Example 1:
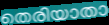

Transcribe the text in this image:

തെരിയാതാ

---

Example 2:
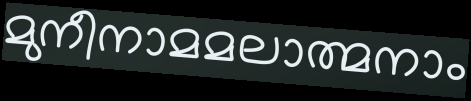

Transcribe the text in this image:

മുനീനാമമലാത്മനാം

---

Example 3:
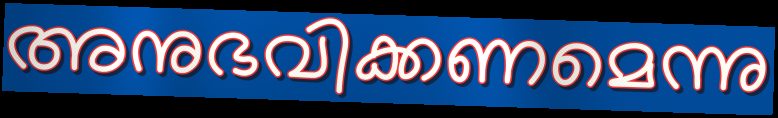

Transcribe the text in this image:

അനുഭവിക്കണമെന്നു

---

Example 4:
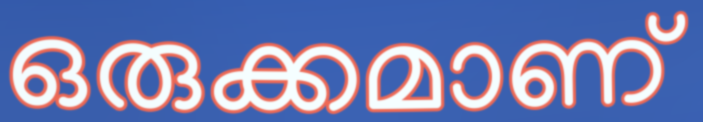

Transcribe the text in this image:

ഒരുക്കമാണ്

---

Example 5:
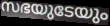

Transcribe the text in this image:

സഭയുടേയും